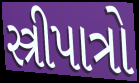
સ્ત્રીપાત્રો